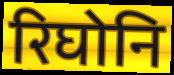
रिघोनि